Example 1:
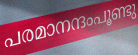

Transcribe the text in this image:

പരമാനന്ദംപൂണ്ടു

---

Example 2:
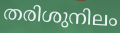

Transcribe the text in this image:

തരിശുനിലം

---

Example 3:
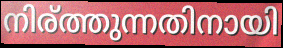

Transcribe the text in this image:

നിര്ത്തുന്നതിനായി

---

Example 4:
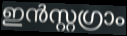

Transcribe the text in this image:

ഇൻസ്റ്റഗ്രാം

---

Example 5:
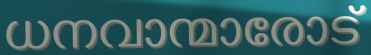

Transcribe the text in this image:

ധനവാന്മാരോട്